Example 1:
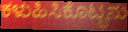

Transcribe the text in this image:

ಕಳುಹಿಸಿಕೊಟ್ಟನು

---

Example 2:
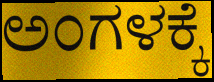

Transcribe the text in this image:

ಅಂಗಳಕ್ಕೆ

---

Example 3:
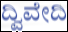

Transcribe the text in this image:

ದ್ವಿವೇದಿ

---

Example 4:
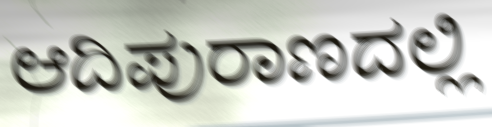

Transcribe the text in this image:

ಆದಿಪುರಾಣದಲ್ಲಿ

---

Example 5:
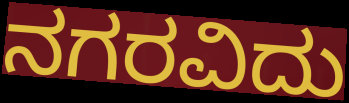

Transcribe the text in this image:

ನಗರವಿದು